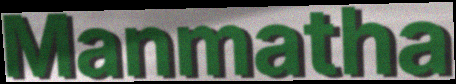
Manmatha